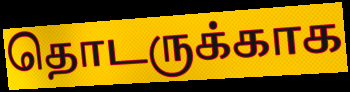
தொடருக்காக